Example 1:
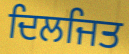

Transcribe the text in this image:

ਦਿਲਜਿਤ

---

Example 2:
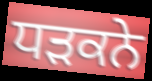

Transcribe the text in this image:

ਧਡ਼ਕਨੇ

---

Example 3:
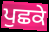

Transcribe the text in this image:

ਪੁਛਕੇ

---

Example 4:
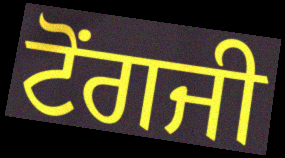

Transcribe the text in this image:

ਟੋਂਗਜੀ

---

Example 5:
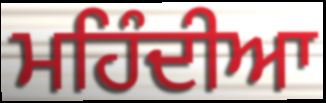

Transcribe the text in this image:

ਮਹਿੰਦੀਆ